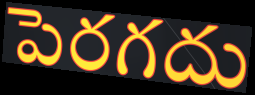
పెరగదు